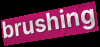
brushing